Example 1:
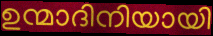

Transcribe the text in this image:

ഉന്മാദിനിയായി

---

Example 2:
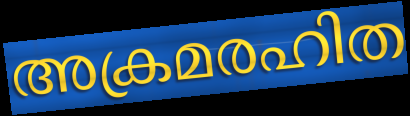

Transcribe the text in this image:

അക്രമരഹിത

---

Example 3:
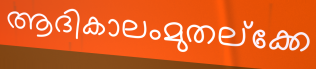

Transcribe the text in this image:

ആദികാലംമുതല്ക്കേ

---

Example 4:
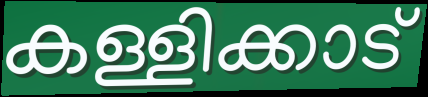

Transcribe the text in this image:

കള്ളിക്കാട്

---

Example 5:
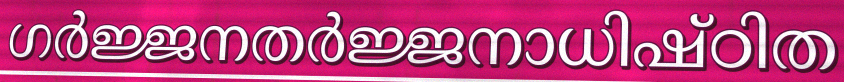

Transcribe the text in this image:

ഗർജ്ജനതർജ്ജനാധിഷ്ഠിത